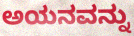
ಅಯನವನ್ನು